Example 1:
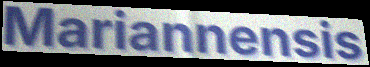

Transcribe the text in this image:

Mariannensis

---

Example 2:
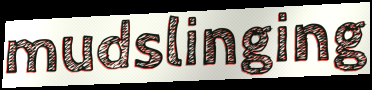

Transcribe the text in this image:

mudslinging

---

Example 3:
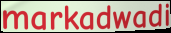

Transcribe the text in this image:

markadwadi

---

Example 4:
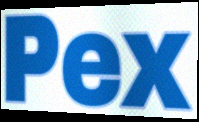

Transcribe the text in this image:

Pex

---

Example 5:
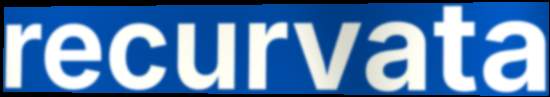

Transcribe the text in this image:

recurvata